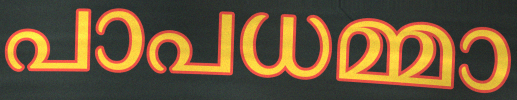
പാപധമ്മാ